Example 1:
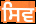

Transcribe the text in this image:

ਸਿਵ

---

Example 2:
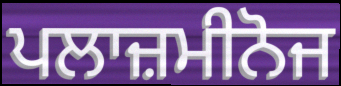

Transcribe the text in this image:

ਪਲਾਜ਼ਮੀਨੋਜ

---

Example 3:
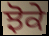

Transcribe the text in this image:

ਝੋਕੇ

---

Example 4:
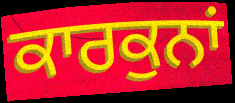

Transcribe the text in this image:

ਕਾਰਕੁਨਾਂ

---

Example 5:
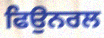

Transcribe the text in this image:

ਫਿਉਨਰਲ